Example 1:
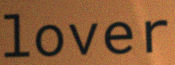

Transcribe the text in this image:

lover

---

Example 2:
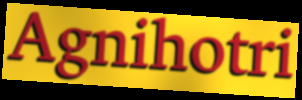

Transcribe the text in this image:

Agnihotri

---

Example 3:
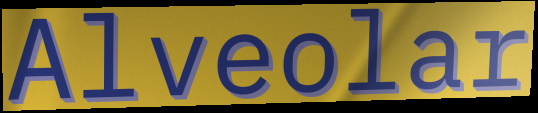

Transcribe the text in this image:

Alveolar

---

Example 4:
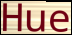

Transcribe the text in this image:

Hue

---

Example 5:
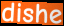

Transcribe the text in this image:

dishe